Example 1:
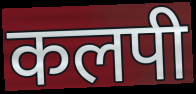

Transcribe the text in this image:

कलपी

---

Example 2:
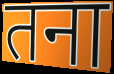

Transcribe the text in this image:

तना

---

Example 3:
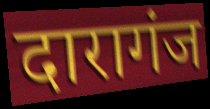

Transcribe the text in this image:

दारागंज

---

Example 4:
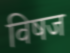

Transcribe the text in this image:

विषज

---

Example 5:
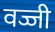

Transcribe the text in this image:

वज्जी